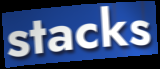
stacks